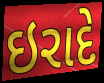
ઇરાદે